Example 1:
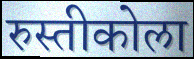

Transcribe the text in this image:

रुस्तीकोला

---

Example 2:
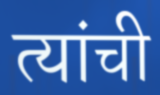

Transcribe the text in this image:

त्‍यांची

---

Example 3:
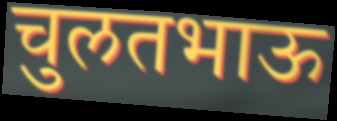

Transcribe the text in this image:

चुलतभाऊ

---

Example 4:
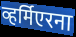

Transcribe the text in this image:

व्हर्मिएरना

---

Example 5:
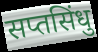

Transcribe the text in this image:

सप्तसिंधु